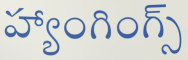
హ్యాంగింగ్స్